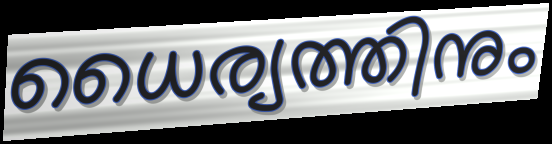
ധൈര്യത്തിനും